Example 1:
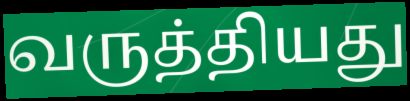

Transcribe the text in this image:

வருத்தியது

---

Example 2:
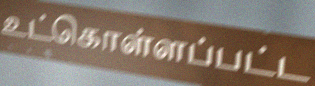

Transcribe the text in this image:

உட்கொள்ளப்பட்ட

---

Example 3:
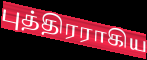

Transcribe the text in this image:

புத்திரராகிய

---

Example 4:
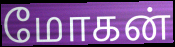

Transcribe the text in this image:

மோகன்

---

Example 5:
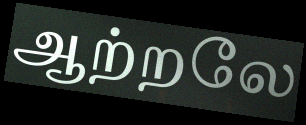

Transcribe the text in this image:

ஆற்றலே